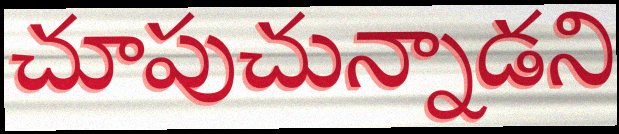
చూపుచున్నాడని